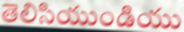
తెలిసియుండియు